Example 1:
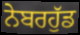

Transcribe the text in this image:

ਨੇਬਰਹੁੱਡ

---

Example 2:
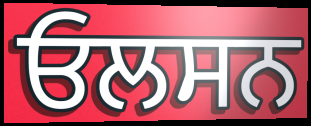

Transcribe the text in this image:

ਓਲਸਨ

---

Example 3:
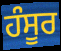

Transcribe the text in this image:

ਹੰਸੂਰ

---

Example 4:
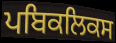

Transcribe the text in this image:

ਪਬਿਕਲਿਕਸ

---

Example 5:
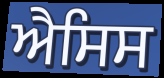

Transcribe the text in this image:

ਐਸਿਸ